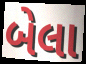
બેલા